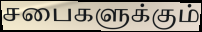
சபைகளுக்கும்